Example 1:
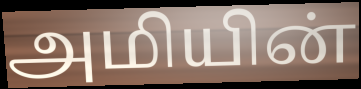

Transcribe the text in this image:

அமியின்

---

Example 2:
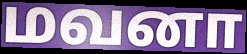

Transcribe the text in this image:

மவனா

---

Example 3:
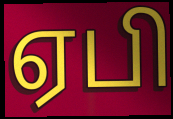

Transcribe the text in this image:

ஏபி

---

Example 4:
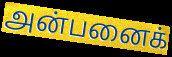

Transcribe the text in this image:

அன்பனைக்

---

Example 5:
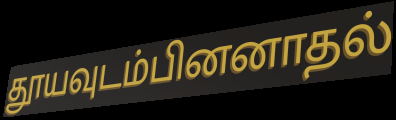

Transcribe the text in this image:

தூயவுடம்பினனாதல்